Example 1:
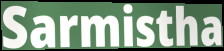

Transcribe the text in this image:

Sarmistha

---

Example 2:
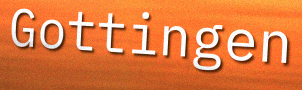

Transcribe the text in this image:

Gottingen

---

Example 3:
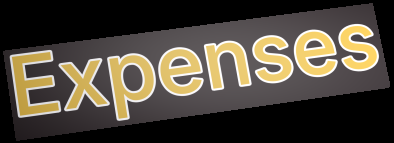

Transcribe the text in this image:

Expenses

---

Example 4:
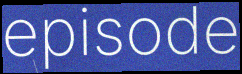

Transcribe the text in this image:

episode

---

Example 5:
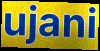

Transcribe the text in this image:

ujani